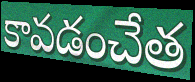
కావడంచేత